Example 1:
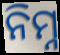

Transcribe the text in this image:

ନିମ୍ନ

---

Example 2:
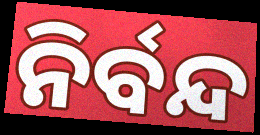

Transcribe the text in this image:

ନିର୍ବନ୍ଦ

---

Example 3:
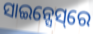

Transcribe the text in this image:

ସାଇନ୍ସେସ୍‌ରେ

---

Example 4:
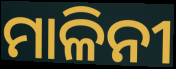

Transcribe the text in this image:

ମାଳିନୀ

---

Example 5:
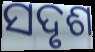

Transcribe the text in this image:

ସଦୃଶ